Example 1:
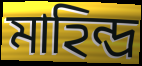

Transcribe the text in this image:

মাহিন্দ্র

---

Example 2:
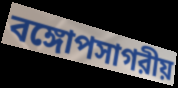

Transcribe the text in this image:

বঙ্গোপসাগরীয়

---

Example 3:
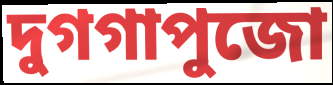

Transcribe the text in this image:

দুগগাপুজো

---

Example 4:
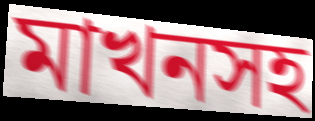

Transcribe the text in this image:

মাখনসহ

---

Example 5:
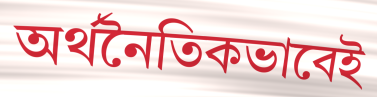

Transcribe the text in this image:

অর্থনৈতিকভাবেই